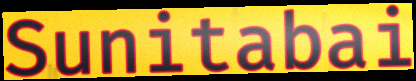
Sunitabai